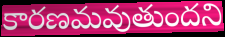
కారణమవుతుందని